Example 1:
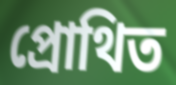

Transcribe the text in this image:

প্ৰোথিত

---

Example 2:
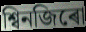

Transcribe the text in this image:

শ্বিনজিৰো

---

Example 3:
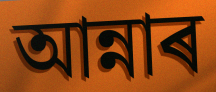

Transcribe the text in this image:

আন্নাৰ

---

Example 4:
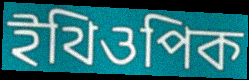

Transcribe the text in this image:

ইথিওপিক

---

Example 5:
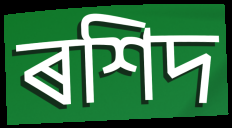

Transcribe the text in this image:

ৰশিদ